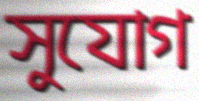
সুযোগ